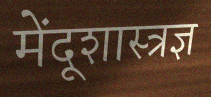
मेंदूशास्त्रज्ञ